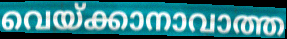
വെയ്ക്കാനാവാത്ത